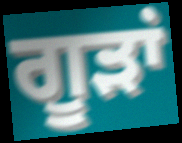
ਗੂੜਾਂ